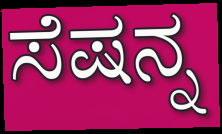
ಸೆಷನ್ನ